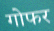
गोफर